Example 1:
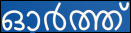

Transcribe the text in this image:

ഓർത്ത്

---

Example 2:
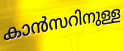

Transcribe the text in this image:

കാൻസറിനുള്ള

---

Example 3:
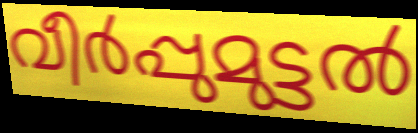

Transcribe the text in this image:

വീർപ്പുമുട്ടൽ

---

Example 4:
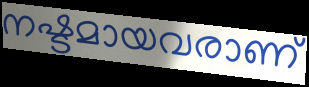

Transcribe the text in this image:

നഷ്ടമായവരാണ്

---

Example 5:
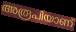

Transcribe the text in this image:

അരൂപിയാണ്